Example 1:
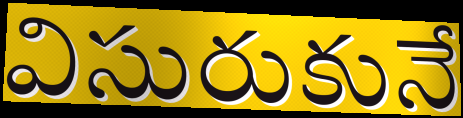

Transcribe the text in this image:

విసురుకునే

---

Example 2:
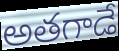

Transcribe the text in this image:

అతగాడే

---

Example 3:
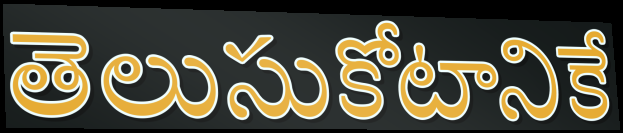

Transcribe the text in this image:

తెలుసుకోటానికే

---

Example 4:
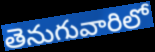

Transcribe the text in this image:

తెనుగువారిలో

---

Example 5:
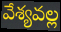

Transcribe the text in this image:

వేశ్యవల్ల